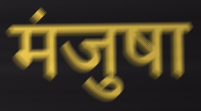
मंजुषा